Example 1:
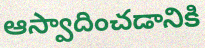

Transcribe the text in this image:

ఆస్వాదించడానికి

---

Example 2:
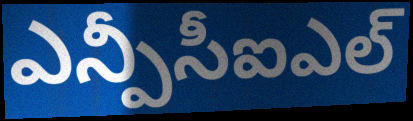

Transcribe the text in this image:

ఎన్పీసీఐఎల్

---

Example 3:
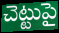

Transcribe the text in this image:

చెట్టుపై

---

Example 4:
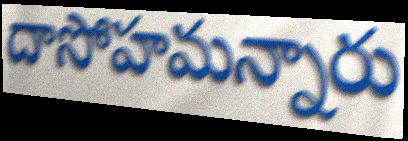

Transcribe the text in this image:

దాసోహమన్నారు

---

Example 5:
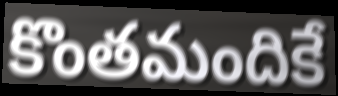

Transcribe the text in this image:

కొంతమందికే